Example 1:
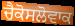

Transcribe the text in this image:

ਚੈਕੋਸਲੋਵਾਕ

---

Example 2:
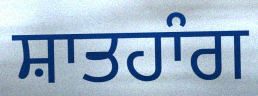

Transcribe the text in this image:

ਸ਼ਾਤਹਾੰਗ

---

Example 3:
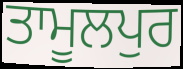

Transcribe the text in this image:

ਤਾਮੂਲਪੁਰ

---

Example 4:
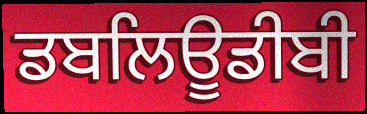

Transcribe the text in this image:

ਡਬਲਿਊਡੀਬੀ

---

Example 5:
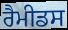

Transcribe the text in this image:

ਰੈਮੀਡਸ